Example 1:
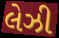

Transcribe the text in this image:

લેઝી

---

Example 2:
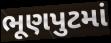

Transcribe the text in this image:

ભૂણપુટમાં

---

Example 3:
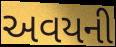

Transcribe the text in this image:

અવયની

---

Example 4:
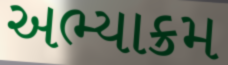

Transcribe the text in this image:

અભ્યાક્રમ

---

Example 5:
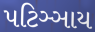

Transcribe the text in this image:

પટિઞ્ઞાય